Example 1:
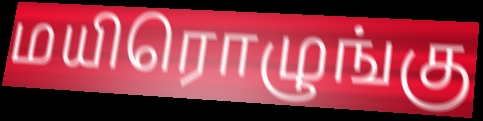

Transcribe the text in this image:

மயிரொழுங்கு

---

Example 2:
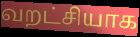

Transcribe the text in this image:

வறட்சியாக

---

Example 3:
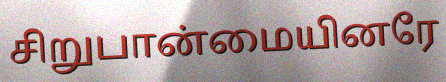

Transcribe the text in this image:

சிறுபான்மையினரே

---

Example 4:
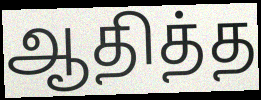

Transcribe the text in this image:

ஆதித்த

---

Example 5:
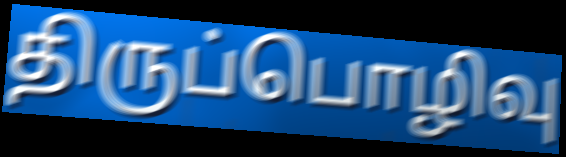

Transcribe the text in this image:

திருப்பொழிவு